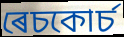
ৰেচকোৰ্চ